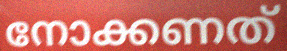
നോക്കണത്